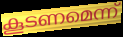
കൂടണമെന്ന്